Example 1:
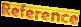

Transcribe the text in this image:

Reference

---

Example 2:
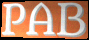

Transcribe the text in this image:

PAB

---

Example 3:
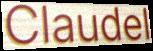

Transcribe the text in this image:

Claudel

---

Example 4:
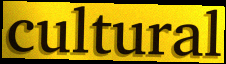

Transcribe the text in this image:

cultural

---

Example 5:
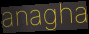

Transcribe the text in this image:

anagha